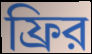
ফ্রির